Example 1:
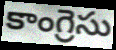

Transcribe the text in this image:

కాంగ్రెసు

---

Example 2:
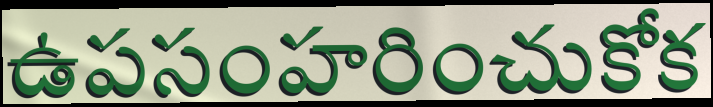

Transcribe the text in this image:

ఉపసంహరించుకోక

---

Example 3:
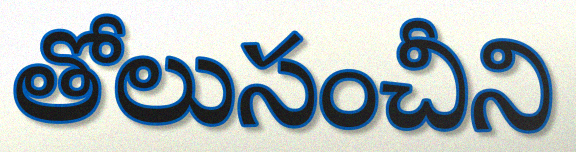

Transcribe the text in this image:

తోలుసంచీని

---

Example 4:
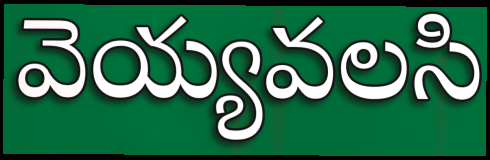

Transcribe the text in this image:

వెయ్యవలసి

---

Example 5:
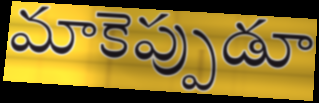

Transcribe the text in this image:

మాకెప్పుడూ